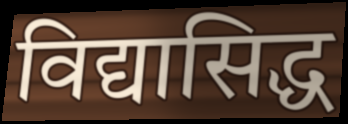
विद्यासिद्ध